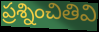
ప్రశ్నించితివి